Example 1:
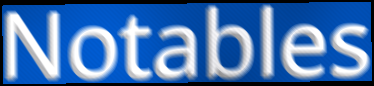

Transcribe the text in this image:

Notables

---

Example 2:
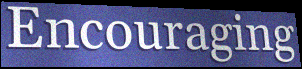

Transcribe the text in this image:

Encouraging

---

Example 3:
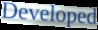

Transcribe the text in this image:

Developed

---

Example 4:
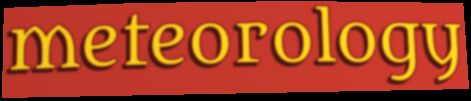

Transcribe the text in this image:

meteorology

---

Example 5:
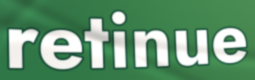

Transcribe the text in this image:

retinue